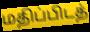
மதிப்பிடத்